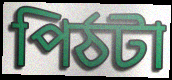
পিঠটা